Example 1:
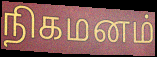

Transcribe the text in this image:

நிகமனம்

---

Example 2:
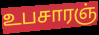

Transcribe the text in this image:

உபசாரஞ்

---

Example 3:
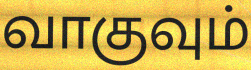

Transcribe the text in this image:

வாகுவும்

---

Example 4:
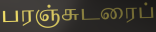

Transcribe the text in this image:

பரஞ்சுடரைப்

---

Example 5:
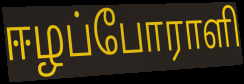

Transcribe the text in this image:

ஈழப்போராளி